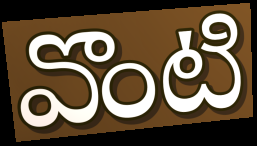
వొంటి